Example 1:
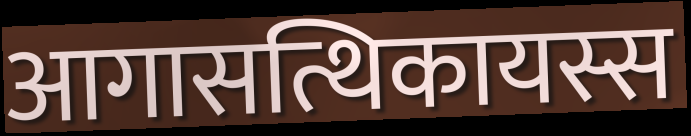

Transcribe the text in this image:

आगासत्थिकायस्स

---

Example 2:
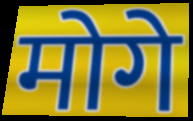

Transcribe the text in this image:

मोगे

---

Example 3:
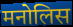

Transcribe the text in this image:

मनोलिस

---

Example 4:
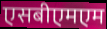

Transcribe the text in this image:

एसबीएमएम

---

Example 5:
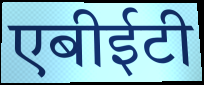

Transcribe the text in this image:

एबीईटी